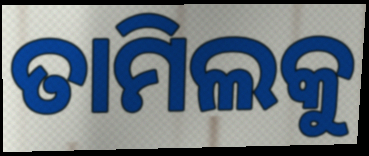
ତାମିଲକୁ